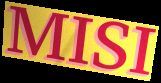
MISI